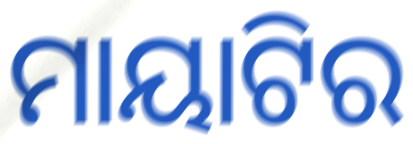
ମାୟାଟିର